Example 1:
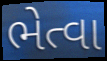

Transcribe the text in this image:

ભેત્વા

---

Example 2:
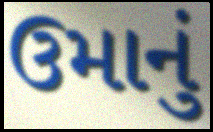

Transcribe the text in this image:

ઉમાનું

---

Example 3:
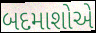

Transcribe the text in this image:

બદમાશોએ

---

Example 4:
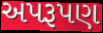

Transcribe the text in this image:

અપરૂપણ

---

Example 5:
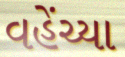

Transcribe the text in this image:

વહેંચ્યા